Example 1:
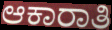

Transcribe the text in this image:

ಆಕಾರಾತಿ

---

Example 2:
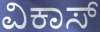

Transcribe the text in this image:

ವಿಕಾಸ್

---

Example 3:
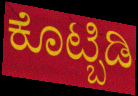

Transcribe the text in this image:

ಕೊಟ್ಬಿಡಿ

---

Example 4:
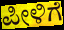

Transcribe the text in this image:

ಪೀಳಿಗೆ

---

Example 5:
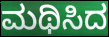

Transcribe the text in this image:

ಮಥಿಸಿದ